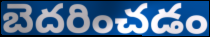
బెదరించడం